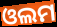
ଓଲମ